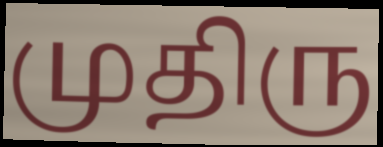
முதிரு